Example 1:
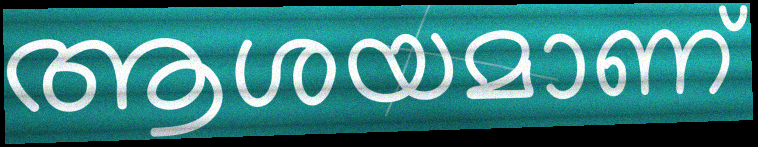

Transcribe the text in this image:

ആശയമാണ്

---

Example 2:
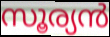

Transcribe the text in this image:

സൂര്യൻ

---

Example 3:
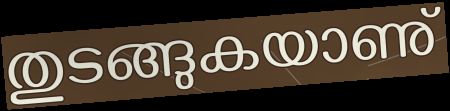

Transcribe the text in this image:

തുടങ്ങുകയാണു്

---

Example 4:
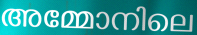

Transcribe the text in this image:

അമ്മോനിലെ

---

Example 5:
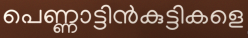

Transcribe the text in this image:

പെണ്ണാട്ടിൻകുട്ടികളെ